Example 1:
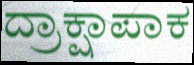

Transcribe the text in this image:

ದ್ರಾಕ್ಷಾಪಾಕ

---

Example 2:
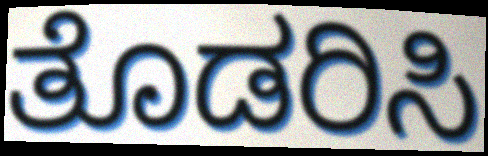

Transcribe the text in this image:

ತೊಡರಿಸಿ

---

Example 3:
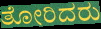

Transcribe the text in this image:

ತೋರಿದರು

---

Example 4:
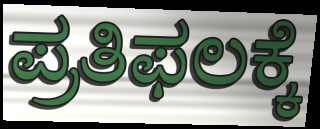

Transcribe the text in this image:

ಪ್ರತಿಫಲಕ್ಕೆ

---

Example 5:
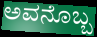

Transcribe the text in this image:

ಅವನೊಬ್ಬ